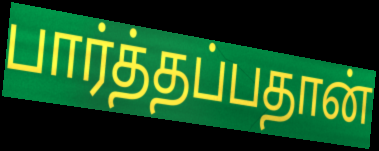
பார்த்தப்பதான்